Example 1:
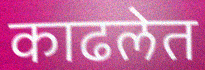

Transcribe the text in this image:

काढलेत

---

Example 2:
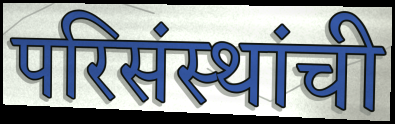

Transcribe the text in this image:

परिसंस्थांची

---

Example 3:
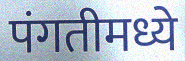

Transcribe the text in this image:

पंगतीमध्ये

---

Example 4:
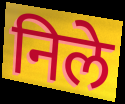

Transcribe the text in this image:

निले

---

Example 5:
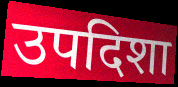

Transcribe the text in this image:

उपदिशा